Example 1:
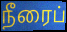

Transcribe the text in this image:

நீரைப்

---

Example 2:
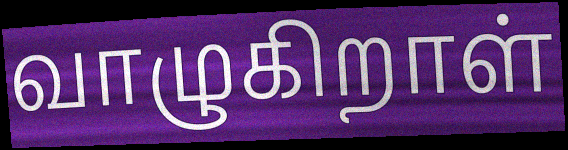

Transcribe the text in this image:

வாழுகிறாள்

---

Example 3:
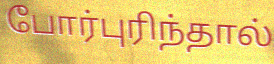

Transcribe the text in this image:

போர்புரிந்தால்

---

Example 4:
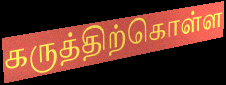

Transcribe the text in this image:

கருத்திற்கொள்ள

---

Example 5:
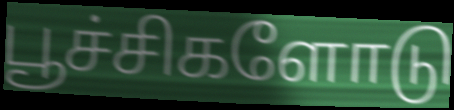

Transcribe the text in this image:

பூச்சிகளோடு